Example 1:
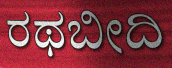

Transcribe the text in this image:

ರಥಬೀದಿ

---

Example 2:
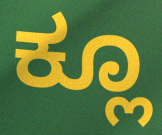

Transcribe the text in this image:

ಕ್ಲೂ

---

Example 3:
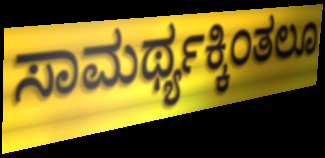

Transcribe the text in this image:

ಸಾಮರ್ಥ್ಯಕ್ಕಿಂತಲೂ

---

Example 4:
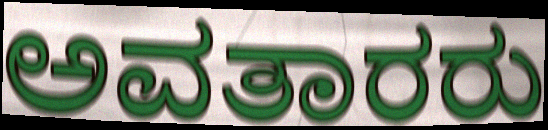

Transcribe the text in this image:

ಅವತಾರರು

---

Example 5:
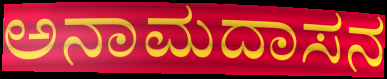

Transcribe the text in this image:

ಅನಾಮದಾಸನ